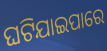
ଘଟିଯାଇପାରେ